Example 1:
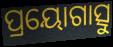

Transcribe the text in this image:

ପ୍ରୟୋଗାତ୍ସୁ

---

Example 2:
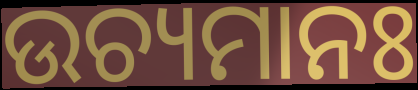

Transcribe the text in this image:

ଉଚ୍ୟମାନଃ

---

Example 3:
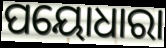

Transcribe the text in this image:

ପୟୋଧାରା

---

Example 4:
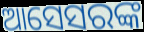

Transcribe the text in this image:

ଆସେସରଙ୍କ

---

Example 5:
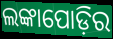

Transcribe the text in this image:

ଲଙ୍କାପୋଡ଼ିର